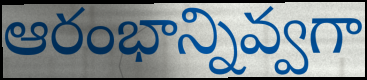
ఆరంభాన్నివ్వగా